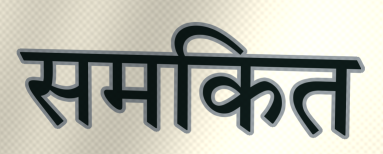
समकित